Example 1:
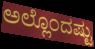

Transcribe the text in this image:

ಅಲ್ಲೊಂದಷ್ಟು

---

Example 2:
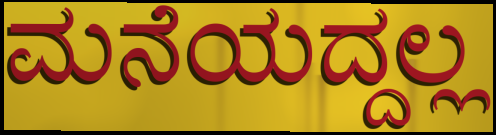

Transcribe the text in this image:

ಮನೆಯದ್ದಲ್ಲ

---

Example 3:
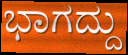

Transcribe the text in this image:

ಭಾಗದ್ದು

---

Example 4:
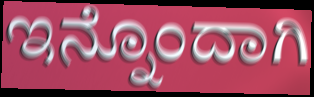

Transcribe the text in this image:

ಇನ್ನೊಂದಾಗಿ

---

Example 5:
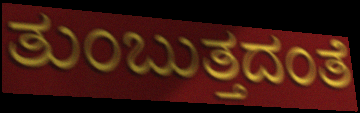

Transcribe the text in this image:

ತುಂಬುತ್ತದಂತೆ